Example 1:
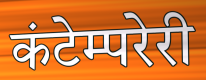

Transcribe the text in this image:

कंटेम्परेरी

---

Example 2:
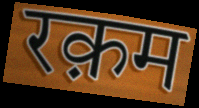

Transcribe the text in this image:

रक़म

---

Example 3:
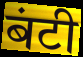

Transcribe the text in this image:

बंटी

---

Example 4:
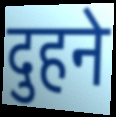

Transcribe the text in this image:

दुहने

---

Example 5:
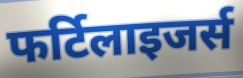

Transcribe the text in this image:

फर्टिलाइजर्स